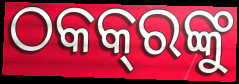
ଠକକ୍‌ରଙ୍କୁ